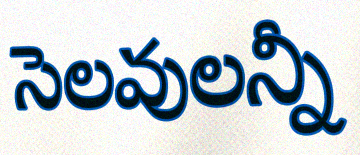
సెలవులన్నీ